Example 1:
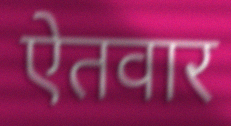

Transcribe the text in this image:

ऐतवार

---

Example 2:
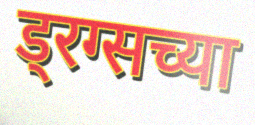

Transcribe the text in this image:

ड्रग्सच्या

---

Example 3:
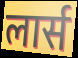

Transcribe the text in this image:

लार्स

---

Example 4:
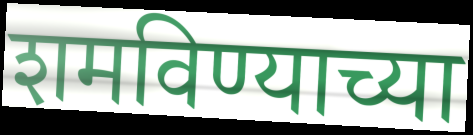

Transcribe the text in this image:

शमविण्याच्या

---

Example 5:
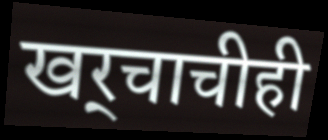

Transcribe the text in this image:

खर्चाचीही